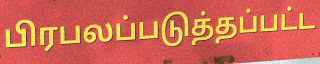
பிரபலப்படுத்தப்பட்ட